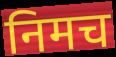
निमच